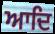
ਆਦਿ